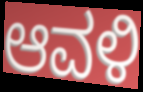
ಆವಳಿ